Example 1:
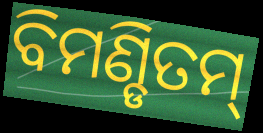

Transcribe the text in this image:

ବିମଣ୍ଡିତମ୍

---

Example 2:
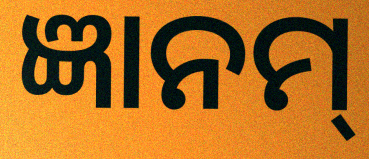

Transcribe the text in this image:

ଜ୍ଞାନମ୍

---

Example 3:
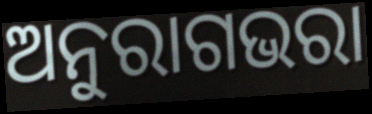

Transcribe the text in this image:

ଅନୁରାଗଭରା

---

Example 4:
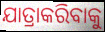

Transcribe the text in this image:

ଯାତ୍ରାକରିବାକୁ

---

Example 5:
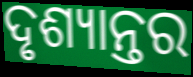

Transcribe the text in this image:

ଦୃଶ୍ୟାନ୍ତର